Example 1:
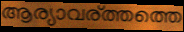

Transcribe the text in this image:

ആര്യാവര്ത്തത്തെ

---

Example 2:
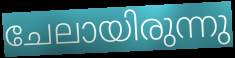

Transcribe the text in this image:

ചേലായിരുന്നു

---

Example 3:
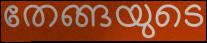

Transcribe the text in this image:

തേങ്ങയുടെ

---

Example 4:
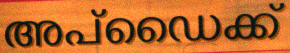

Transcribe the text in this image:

അപ്ഡൈക്ക്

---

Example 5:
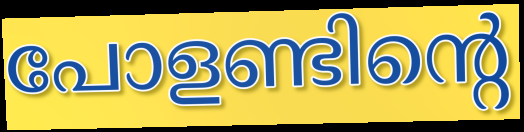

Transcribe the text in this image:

പോളണ്ടിന്റെ